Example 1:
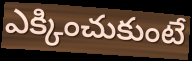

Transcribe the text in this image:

ఎక్కించుకుంటే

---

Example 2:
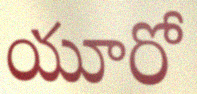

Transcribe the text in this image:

యూరో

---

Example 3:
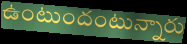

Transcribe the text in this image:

ఉంటుందంటున్నారు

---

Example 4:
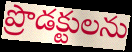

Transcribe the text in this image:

ప్రొడక్టులను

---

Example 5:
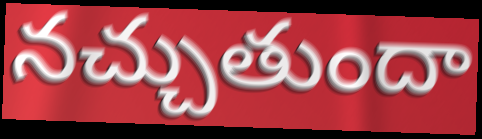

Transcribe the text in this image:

నచ్చుతుందా